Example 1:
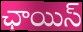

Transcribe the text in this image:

ఛాయిస్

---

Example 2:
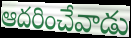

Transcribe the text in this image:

ఆదరించేవాడు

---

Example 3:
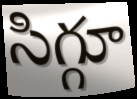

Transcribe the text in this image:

సిగ్గూ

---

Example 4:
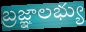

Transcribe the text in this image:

బ్రజ్ఞాలభ్యు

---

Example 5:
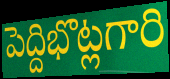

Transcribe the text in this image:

పెద్దిభొట్లగారి